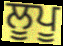
ਲੂਪੂ